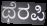
ಥೆರಪಿ